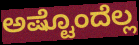
ಅಷ್ಟೊಂದೆಲ್ಲ